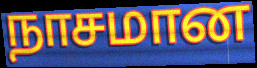
நாசமான